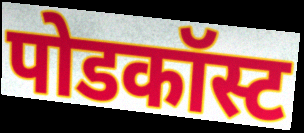
पोडकॉस्ट